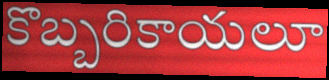
కొబ్బరికాయలూ